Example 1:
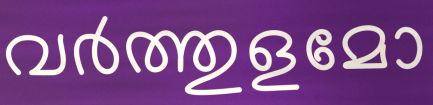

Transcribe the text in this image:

വർത്തുളമോ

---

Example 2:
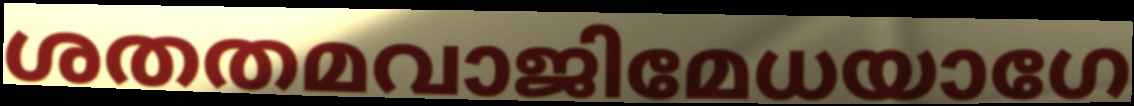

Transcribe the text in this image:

ശതതമവാജിമേധയാഗേ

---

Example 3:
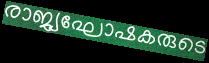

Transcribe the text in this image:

രാജ്യഘോഷകരുടെ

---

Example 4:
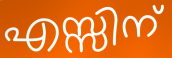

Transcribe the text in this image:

എസ്സിന്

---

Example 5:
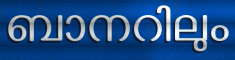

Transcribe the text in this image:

ബാനറിലും